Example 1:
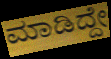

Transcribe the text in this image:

ಮಾಡಿದ್ದೇ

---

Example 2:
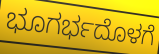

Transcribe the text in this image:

ಭೂಗರ್ಭದೊಳಗೆ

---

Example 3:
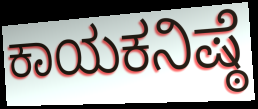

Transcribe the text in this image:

ಕಾಯಕನಿಷ್ಠೆ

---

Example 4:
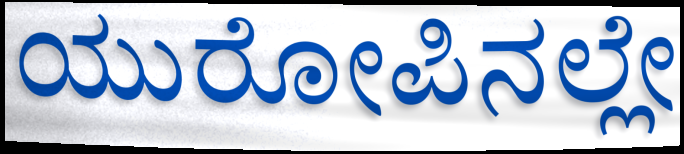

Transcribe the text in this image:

ಯುರೋಪಿನಲ್ಲೇ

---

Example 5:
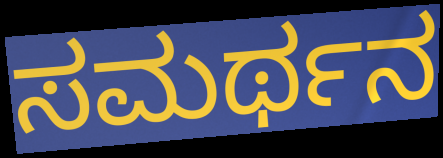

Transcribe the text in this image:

ಸಮರ್ಥನ